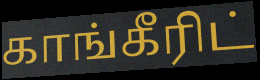
காங்கீரிட்